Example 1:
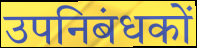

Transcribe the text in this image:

उपनिबंधकों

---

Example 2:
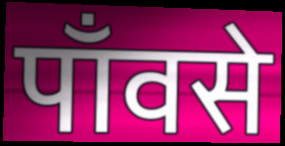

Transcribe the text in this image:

पाँवसे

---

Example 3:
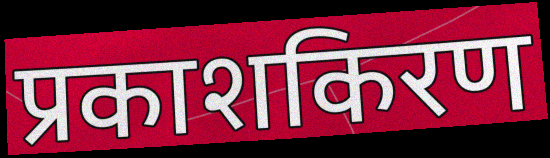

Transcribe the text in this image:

प्रकाशकिरण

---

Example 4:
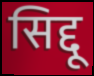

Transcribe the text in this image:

सिद्दू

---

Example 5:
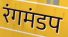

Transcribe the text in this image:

रंगमंडप